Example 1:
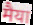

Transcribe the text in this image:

मैया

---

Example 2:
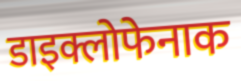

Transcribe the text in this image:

डाइक्लोफेनाक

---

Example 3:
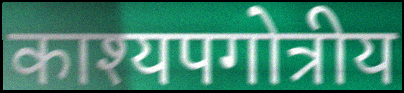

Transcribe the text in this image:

काश्यपगोत्रीय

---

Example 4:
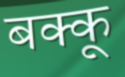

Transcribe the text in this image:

बक्कू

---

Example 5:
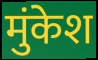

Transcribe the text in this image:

मुंकेश